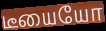
டீயையோ